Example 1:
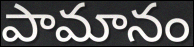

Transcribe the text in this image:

పామానం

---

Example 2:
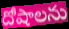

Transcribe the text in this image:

దోషాలను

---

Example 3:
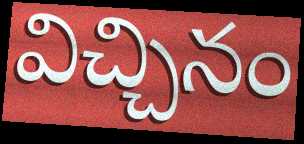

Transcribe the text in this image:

విచ్చినం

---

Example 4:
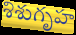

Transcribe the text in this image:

శిశుగృహ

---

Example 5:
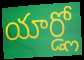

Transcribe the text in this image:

యార్డ్లో